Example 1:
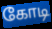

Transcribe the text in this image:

கோடி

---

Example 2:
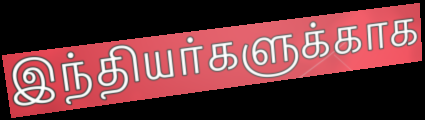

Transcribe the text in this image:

இந்தியர்களுக்காக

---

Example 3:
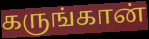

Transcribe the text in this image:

கருங்கான்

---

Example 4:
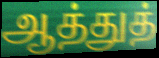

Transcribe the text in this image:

ஆத்துத்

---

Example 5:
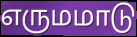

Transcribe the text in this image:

எருமமாடு